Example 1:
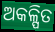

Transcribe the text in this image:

ଅକଳ୍ପିତ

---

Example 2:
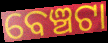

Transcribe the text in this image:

ବେଞ୍ଚଟା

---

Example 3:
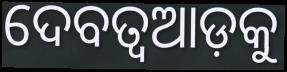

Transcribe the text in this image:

ଦେବତ୍ୱଆଡ଼କୁ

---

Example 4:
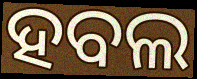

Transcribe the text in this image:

ହବଲ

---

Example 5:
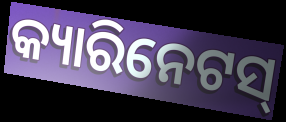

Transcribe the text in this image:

କ୍ୟାରିନେଟସ୍